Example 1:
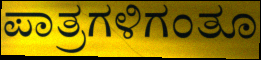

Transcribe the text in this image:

ಪಾತ್ರಗಳಿಗಂತೂ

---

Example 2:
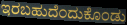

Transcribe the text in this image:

ಇರಬಹುದೆಂದುಕೊಂಡು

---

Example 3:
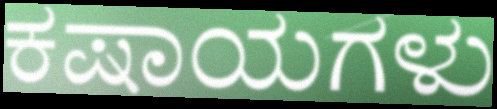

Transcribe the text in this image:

ಕಷಾಯಗಳು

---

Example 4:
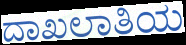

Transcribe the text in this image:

ದಾಖಲಾತಿಯ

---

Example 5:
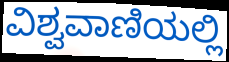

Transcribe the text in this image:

ವಿಶ್ವವಾಣಿಯಲ್ಲಿ